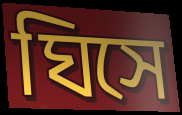
ঘিসে